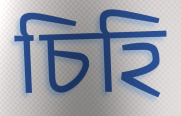
চিহি